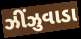
ઝીંઝુવાડા